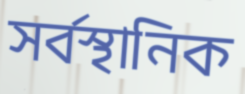
সর্বস্থানিক